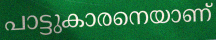
പാട്ടുകാരനെയാണ്